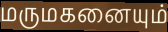
மருமகனையும்